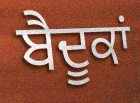
ਬੈਦੂਕਾਂ